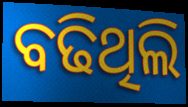
ବଢିଥିଲି